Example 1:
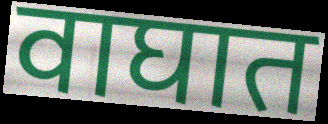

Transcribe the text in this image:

वाघात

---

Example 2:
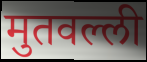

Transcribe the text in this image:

मुतवल्ली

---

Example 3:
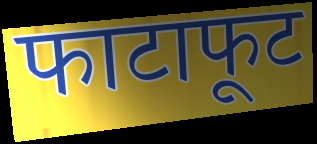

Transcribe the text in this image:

फाटाफूट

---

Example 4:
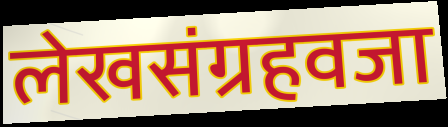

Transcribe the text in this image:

लेखसंग्रहवजा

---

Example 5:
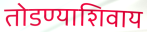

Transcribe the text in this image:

तोडण्याशिवाय